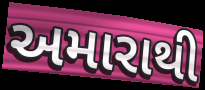
અમારાથી